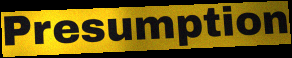
Presumption